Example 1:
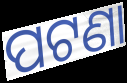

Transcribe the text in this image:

ପଟଣା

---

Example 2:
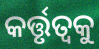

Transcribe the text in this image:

କର୍ତ୍ତୃତ୍ୱକୁ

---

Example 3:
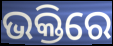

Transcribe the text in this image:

ଭକ୍ତିରେ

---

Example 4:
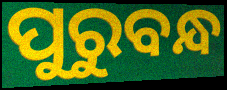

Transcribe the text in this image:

ପୁରୁବନ୍ଧ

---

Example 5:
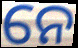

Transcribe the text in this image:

ନେ